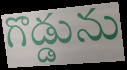
గొడ్డును